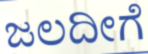
ಜಲದೀಗೆ